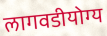
लागवडीयोग्य